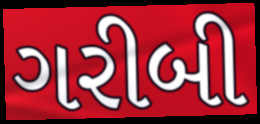
ગરીબી